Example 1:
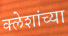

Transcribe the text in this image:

क्लेशांच्या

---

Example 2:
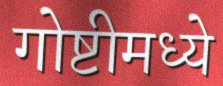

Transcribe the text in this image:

गोष्टीमध्ये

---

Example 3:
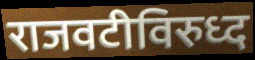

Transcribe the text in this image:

राजवटीविरुध्द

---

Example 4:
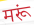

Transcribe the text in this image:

मरूं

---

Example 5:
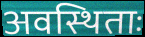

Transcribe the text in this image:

अवस्थिताः